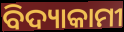
ବିଦ୍ୟାକାମୀ